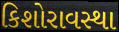
કિશોરાવસ્થા